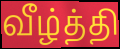
வீழ்த்தி